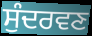
ਸੁੰਦਰਵਣ